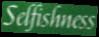
Selfishness